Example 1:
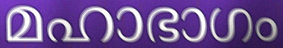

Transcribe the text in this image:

മഹാഭാഗം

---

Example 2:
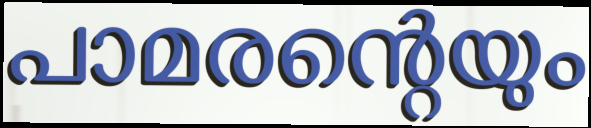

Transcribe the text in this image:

പാമരന്റെയും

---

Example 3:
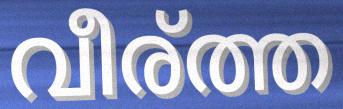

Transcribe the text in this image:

വീര്ത്ത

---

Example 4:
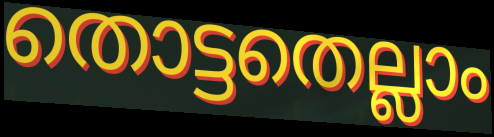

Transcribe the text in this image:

തൊട്ടതെല്ലാം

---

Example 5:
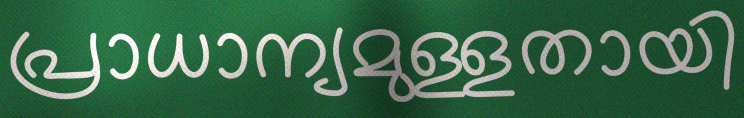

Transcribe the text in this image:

പ്രാധാന്യമുള്ളതായി